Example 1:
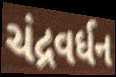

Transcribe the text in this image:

ચંદ્રવર્ધન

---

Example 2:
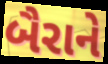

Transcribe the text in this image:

બૈરાને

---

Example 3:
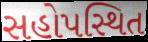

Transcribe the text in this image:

સહોપસ્થિત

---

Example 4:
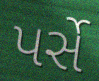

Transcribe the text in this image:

પર્સે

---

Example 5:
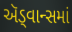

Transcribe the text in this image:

ઍડ્વાન્સમાં